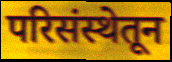
परिसंस्थेतून